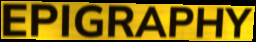
EPIGRAPHY